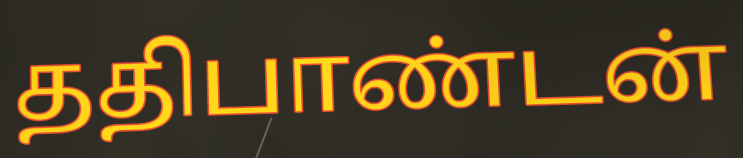
ததிபாண்டன்